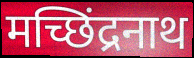
मच्छिंद्रनाथ